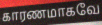
காரணமாகவே